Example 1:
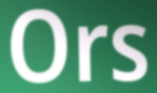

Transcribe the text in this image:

Ors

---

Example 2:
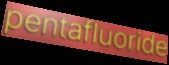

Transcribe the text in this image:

pentafluoride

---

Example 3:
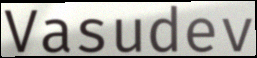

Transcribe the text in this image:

Vasudev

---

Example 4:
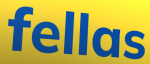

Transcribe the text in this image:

fellas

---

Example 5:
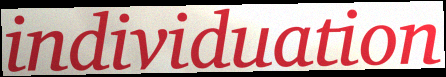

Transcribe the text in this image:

individuation